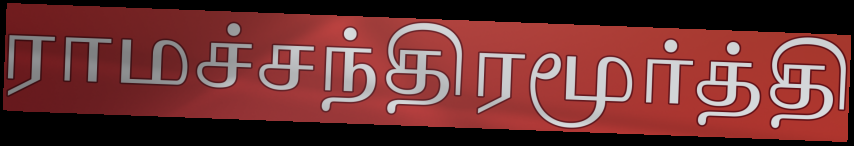
ராமச்சந்திரமூர்த்தி